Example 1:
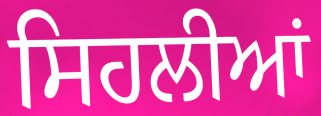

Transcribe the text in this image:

ਸਿਹਲੀਆਂ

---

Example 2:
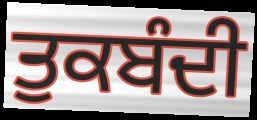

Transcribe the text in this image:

ਤੁਕਬੰਦੀ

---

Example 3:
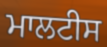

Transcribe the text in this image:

ਮਾਲਟੀਸ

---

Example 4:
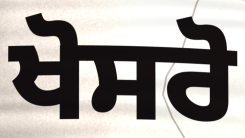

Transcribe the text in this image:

ਖੋਸਰੋ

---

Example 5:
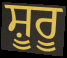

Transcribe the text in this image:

ਸ਼ੂਰੂ